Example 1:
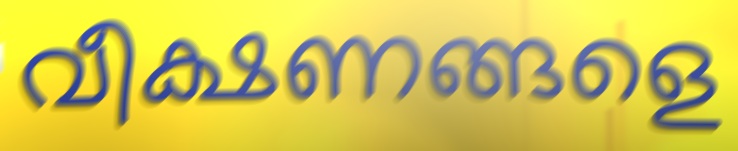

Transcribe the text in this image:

വീക്ഷണങ്ങളെ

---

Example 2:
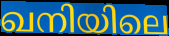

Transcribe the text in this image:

ഖനിയിലെ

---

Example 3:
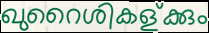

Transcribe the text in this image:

ഖുറൈശികള്ക്കും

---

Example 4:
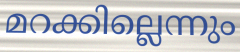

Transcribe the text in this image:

മറക്കില്ലെന്നും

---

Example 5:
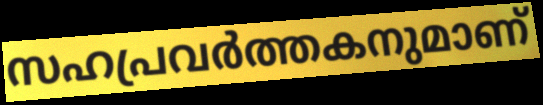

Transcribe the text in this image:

സഹപ്രവർത്തകനുമാണ്